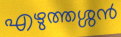
എഴുത്തശ്ശൻ